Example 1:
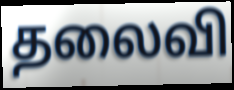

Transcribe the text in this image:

தலைவி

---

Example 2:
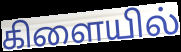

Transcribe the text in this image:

கிளையில்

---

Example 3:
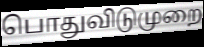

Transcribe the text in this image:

பொதுவிடுமுறை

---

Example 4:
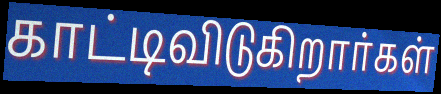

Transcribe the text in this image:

காட்டிவிடுகிறார்கள்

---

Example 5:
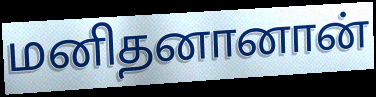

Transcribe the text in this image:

மனிதனானான்